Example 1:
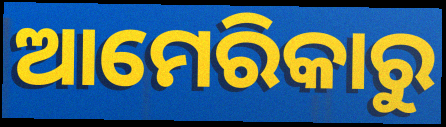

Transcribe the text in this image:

ଆମେରିକାରୁ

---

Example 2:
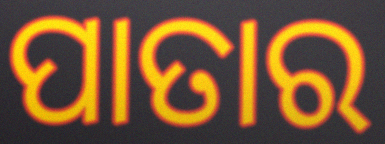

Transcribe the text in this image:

ପାତାର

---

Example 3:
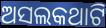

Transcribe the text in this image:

ଅସଲକଥାଟି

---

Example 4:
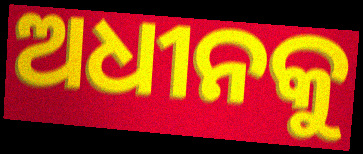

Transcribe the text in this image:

ଅଧୀନକୁ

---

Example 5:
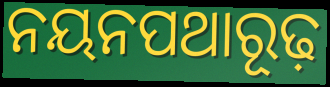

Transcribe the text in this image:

ନୟନପଥାରୂଢ଼